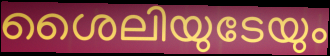
ശൈലിയുടേയും